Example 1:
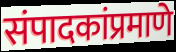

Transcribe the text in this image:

संपादकांप्रमाणे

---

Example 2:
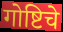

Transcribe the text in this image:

गोष्टिचे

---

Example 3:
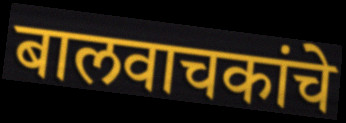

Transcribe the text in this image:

बालवाचकांचे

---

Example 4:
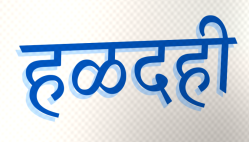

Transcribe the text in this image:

हळदही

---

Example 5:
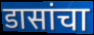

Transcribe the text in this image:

डासांचा